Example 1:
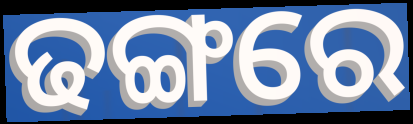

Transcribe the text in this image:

ଢଙ୍ଗରେ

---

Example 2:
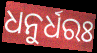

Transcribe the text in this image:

ଧନୁର୍ଧରଃ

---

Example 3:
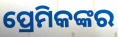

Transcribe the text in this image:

ପ୍ରେମିକଙ୍କର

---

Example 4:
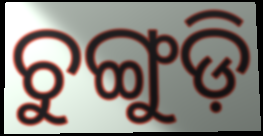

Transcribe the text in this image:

ଚୁଙ୍ଗୁଡ଼ି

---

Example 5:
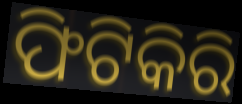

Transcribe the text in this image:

ଫିଟିକିରି